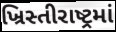
ખ્રિસ્તીરાષ્ટ્રમાં